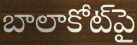
బాలాకోట్‌పై